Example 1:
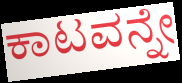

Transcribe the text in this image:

ಕಾಟವನ್ನೇ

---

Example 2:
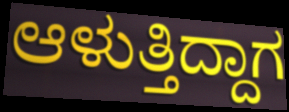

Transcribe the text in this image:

ಆಳುತ್ತಿದ್ದಾಗ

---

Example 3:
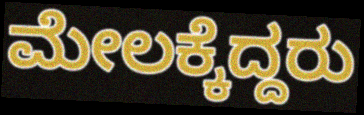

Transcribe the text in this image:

ಮೇಲಕ್ಕೆದ್ದರು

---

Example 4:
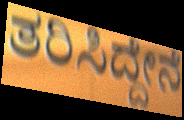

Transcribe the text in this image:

ತರಿಸಿದ್ದೇನೆ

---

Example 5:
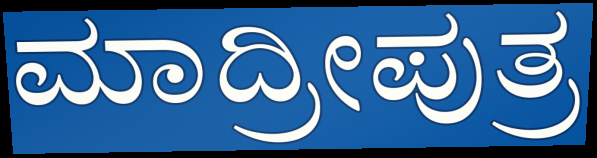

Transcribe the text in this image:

ಮಾದ್ರೀಪುತ್ರ